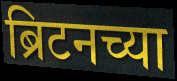
ब्रिटनच्या